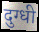
दुग्धी